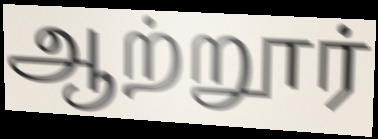
ஆற்றூர்